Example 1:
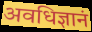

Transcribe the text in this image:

अवधिज्ञानं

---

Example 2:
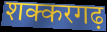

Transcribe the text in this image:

शक्करगढ़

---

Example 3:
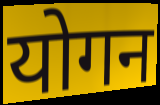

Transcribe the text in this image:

योगन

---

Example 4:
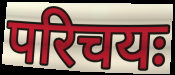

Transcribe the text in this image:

परिचयः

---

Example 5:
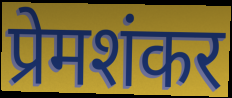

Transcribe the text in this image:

प्रेमशंकर